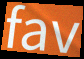
fav